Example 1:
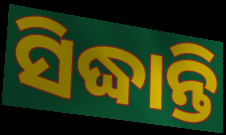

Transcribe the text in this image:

ସିଦ୍ଧାନ୍ତି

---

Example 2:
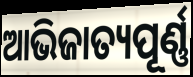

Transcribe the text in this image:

ଆଭିଜାତ୍ୟପୂର୍ଣ୍ଣ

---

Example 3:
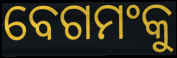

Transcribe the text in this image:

ବେଗମଂକୁ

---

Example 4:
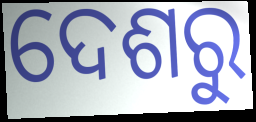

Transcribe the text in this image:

ଦେଶରୁ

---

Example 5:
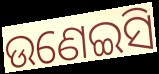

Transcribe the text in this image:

ଉଣେଇସି